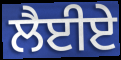
ਲੈਈਏ